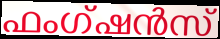
ഫംഗ്ഷൻസ്